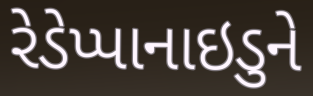
રેડેપ્પાનાઇડુને